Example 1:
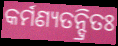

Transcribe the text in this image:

କର୍ମଣ୍ୟତନ୍ଦ୍ରିତଃ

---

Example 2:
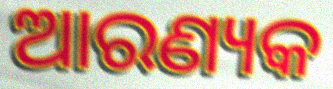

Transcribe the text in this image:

ଆରଣ୍ୟକ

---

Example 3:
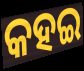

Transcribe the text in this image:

କହଇ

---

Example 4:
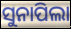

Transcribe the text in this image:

ସୁନାପିଲା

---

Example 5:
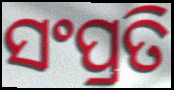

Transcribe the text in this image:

ସଂପ୍ରତି